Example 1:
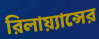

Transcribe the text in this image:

রিলায়্যান্সের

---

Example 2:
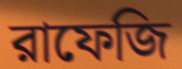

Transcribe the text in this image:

রাফেজি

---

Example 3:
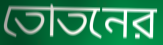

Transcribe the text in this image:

তোতনের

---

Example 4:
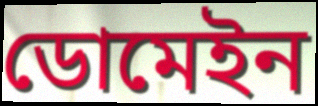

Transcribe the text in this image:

ডোমেইন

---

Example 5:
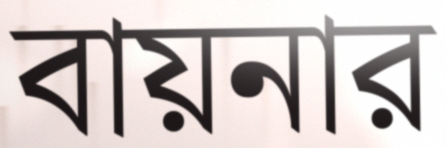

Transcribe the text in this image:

বায়নার